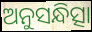
ଅନୁସନ୍ଧିତ୍ସା